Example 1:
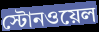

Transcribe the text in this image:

স্টোনওয়েল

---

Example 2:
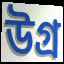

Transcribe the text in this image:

উগ্র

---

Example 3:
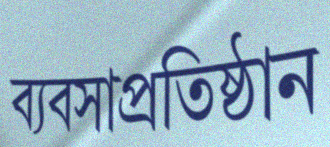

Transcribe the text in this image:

ব্যবসাপ্রতিষ্ঠান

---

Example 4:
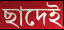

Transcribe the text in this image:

ছাদেই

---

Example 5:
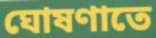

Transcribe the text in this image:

ঘোষণাতে